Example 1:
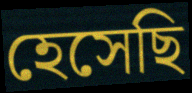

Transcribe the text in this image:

হেসেছি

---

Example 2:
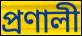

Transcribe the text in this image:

প্রণালী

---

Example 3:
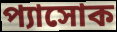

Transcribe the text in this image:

প্যাসোক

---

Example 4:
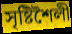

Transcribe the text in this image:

সৃষ্টিশৈলী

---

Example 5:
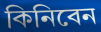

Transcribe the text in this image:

কিনিবেন